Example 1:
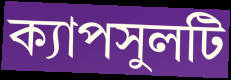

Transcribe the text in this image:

ক্যাপসুলটি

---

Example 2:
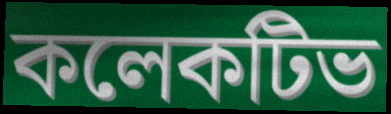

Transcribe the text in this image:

কলেকটিভ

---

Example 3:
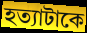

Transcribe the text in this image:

হত্যাটাকে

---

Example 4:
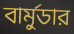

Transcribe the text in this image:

বার্মুডার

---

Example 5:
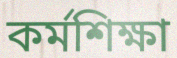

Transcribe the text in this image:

কর্মশিক্ষা